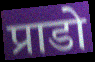
प्राडो